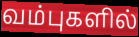
வம்புகளில்